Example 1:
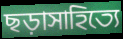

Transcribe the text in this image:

ছড়াসাহিত্যে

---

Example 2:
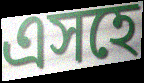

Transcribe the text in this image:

এসহে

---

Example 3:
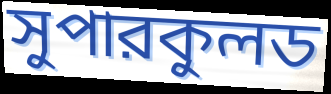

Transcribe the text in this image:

সুপারকুলড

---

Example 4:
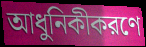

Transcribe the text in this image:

আধুনিকীকরণে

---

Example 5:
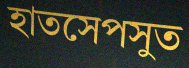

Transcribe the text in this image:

হাতসেপসুত